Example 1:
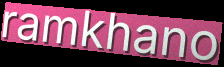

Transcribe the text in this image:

ramkhano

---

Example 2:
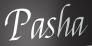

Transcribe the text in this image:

Pasha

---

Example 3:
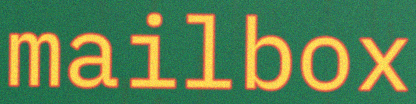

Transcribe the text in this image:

mailbox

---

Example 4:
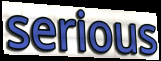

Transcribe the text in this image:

serious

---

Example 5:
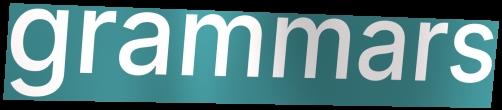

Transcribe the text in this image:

grammars